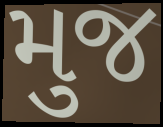
મુજ